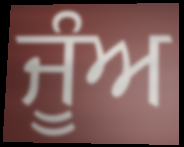
ਜੂੰਅ